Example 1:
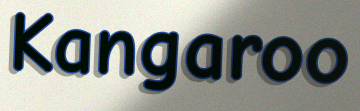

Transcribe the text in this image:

Kangaroo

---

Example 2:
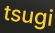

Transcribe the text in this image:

tsugi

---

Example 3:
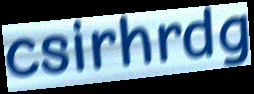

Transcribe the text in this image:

csirhrdg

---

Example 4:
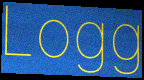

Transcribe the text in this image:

Logg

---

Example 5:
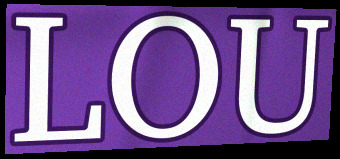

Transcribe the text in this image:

LOU